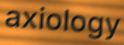
axiology